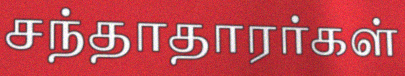
சந்தாதாரர்கள்